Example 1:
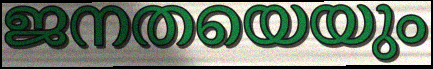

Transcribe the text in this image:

ജനതയെയും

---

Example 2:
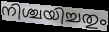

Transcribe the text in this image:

നിശ്ചയിച്ചതും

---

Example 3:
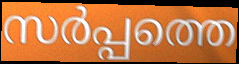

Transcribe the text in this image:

സർപ്പത്തെ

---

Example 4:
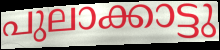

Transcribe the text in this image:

പുലാക്കാട്ടു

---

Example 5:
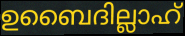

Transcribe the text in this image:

ഉബൈദില്ലാഹ്